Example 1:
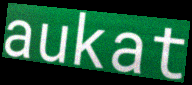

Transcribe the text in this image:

aukat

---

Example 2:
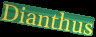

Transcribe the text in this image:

Dianthus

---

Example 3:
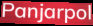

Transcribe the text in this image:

Panjarpol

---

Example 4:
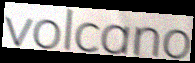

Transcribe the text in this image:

volcano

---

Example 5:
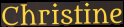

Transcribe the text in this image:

Christine